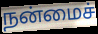
நன்மைச்